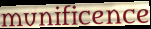
munificence